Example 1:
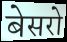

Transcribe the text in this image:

बेसरो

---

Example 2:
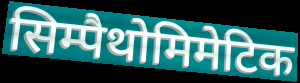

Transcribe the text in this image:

सिम्पैथोमिमेटिक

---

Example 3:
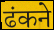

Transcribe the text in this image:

ढंकने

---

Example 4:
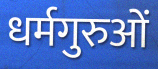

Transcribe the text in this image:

धर्मगुरुओं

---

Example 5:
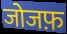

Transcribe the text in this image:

जोजफ़